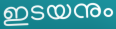
ഇടയനും